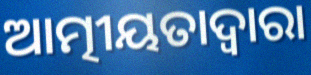
ଆତ୍ମୀୟତାଦ୍ଵାରା